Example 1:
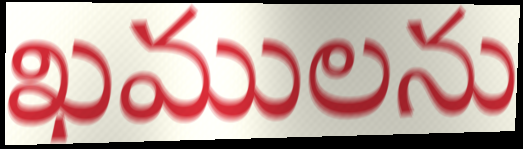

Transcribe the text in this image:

ఖములను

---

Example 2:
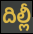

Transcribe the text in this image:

దిల్లీ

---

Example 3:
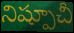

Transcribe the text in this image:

నిష్పూచీ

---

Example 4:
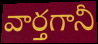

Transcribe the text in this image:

వార్తగానీ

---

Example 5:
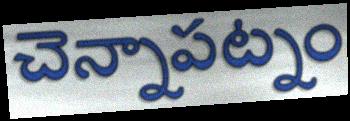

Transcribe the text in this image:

చెన్నాపట్నం